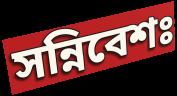
সন্নিবেশঃ